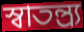
স্বাতন্ত্র্য